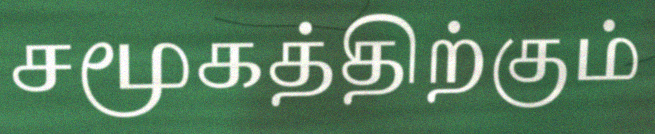
சமூகத்திற்கும்